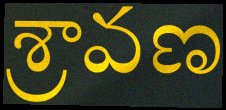
శ్రావణ